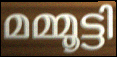
മമ്മൂട്ടി